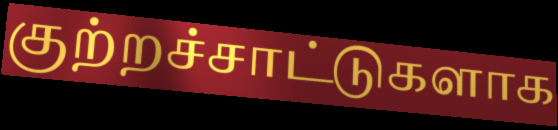
குற்றச்சாட்டுகளாக